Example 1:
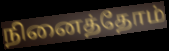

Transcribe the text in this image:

நினைத்தோம்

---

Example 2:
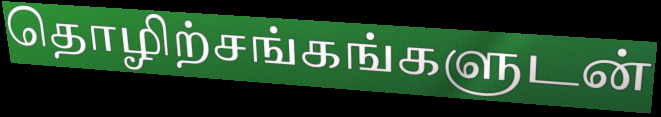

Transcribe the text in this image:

தொழிற்சங்கங்களுடன்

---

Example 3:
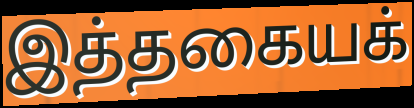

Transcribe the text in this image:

இத்தகையக்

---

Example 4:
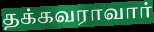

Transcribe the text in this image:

தக்கவராவார்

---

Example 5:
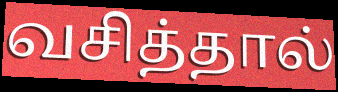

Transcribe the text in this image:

வசித்தால்